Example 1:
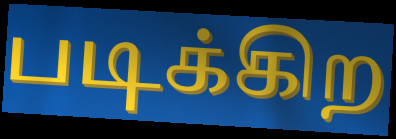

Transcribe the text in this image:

படிக்கிற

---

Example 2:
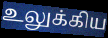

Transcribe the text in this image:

உலுக்கிய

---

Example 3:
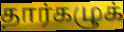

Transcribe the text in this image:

தார்கழுக்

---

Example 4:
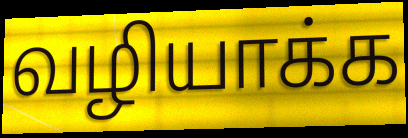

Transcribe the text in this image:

வழியாக்க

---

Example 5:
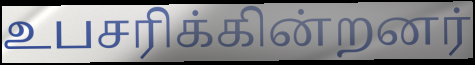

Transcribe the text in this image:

உபசரிக்கின்றனர்